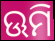
ଊମି